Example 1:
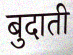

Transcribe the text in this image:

बुदाती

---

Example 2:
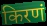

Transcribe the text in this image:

किरणं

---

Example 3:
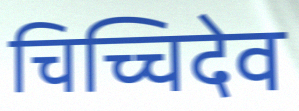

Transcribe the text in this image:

चिच्चिदेव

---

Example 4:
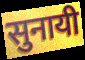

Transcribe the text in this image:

सुनायी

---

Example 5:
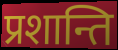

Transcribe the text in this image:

प्रशान्ति